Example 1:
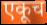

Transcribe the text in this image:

एकूच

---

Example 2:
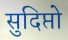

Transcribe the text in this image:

सुदिप्तो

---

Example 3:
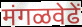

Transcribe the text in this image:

मंगळवेढें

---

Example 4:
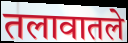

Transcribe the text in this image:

तलावातले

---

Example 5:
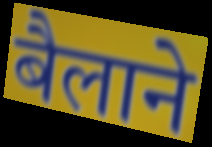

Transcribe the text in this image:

बैलाने